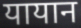
यायान